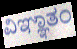
ವಿಞ್ಞಾತಂ